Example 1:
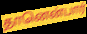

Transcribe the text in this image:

தானென்பார்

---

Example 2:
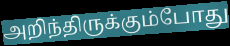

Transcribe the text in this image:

அறிந்திருக்கும்போது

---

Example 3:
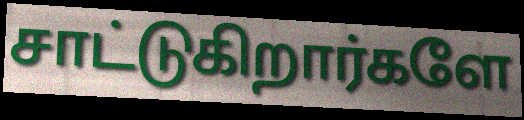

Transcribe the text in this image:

சாட்டுகிறார்களே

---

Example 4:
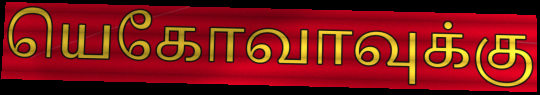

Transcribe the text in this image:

யெகோவாவுக்கு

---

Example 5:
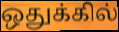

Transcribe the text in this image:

ஒதுக்கில்